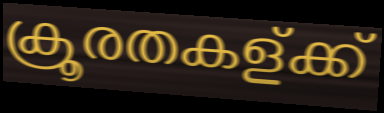
ക്രൂരതകള്ക്ക്